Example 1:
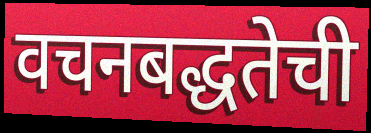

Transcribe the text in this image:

वचनबद्धतेची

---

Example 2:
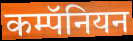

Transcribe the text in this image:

कम्पॅनियन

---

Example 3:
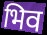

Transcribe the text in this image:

भिव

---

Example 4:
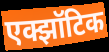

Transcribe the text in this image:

एक्झॉटिक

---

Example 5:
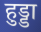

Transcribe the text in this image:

हुड्डा